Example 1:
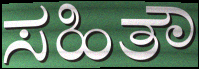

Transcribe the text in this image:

ಸಹಿತೌ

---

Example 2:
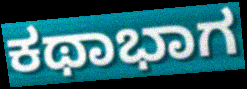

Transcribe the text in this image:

ಕಥಾಭಾಗ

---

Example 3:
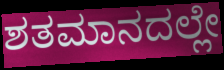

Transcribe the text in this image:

ಶತಮಾನದಲ್ಲೇ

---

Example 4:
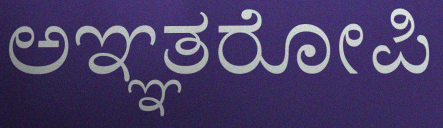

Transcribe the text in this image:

ಅಞ್ಞತರೋಪಿ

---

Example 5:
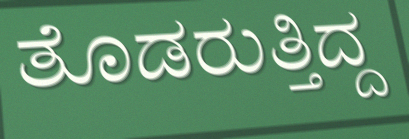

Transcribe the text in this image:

ತೊಡರುತ್ತಿದ್ದ